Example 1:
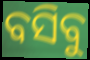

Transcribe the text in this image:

ବସିବୁ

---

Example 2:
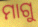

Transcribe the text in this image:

ମାଗୁ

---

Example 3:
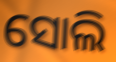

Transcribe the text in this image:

ସୋଲି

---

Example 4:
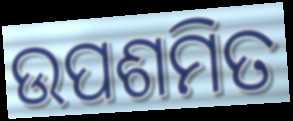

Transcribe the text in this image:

ଉପଶମିତ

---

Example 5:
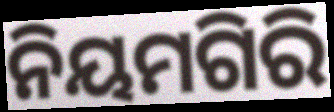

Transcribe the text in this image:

ନିୟମଗିରି